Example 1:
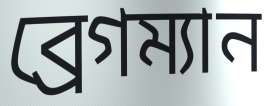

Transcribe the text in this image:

ব্রেগম্যান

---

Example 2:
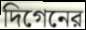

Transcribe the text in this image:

দিগেনের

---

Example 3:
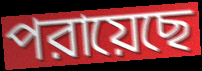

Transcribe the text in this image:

পরায়েছে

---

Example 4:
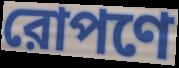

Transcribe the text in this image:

রোপণে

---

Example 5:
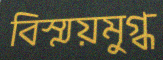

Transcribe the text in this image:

বিস্ময়মুগ্ধ